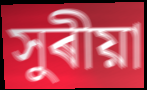
সুৰীয়া